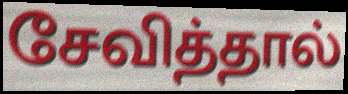
சேவித்தால்